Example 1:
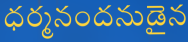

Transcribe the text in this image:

ధర్మనందనుడైన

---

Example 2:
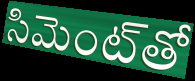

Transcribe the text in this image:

సిమెంట్‌తో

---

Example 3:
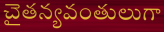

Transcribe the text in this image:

చైతన్యవంతులుగా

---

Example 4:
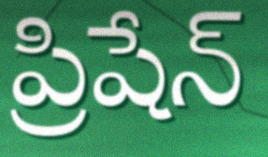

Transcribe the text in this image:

ప్రిషేన్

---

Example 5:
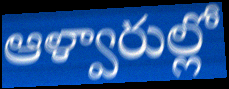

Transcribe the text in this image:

ఆళ్వారుల్లో